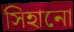
সিহানো